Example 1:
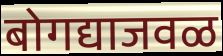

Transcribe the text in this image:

बोगद्याजवळ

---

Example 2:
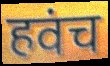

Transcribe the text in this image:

हवंच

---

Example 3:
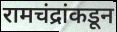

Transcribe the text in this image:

रामचंद्रांकडून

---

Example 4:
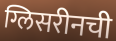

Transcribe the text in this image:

ग्लिसरीनची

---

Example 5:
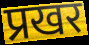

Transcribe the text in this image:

प्रखर